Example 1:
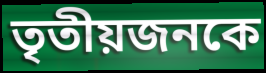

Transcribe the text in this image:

তৃতীয়জনকে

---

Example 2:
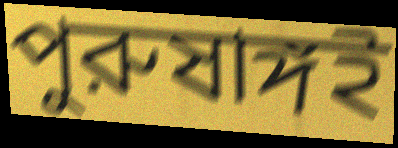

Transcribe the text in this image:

পুরুষাঙ্গই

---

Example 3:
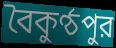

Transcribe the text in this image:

বৈকুণ্ঠপুর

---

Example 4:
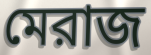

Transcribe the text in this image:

মেরাজ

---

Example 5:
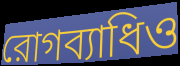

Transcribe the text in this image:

রোগব্যাধিও